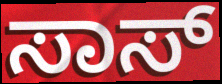
ಸಾಸ್